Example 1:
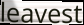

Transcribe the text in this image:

leavest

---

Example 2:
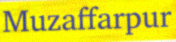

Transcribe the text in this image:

Muzaffarpur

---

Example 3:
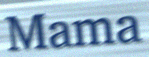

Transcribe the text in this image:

Mama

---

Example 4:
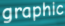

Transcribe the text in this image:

graphic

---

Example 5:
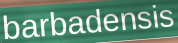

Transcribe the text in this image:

barbadensis